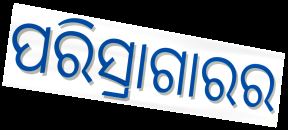
ପରିସ୍ରାଗାରର